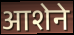
आशेने